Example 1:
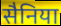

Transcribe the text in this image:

सैनिया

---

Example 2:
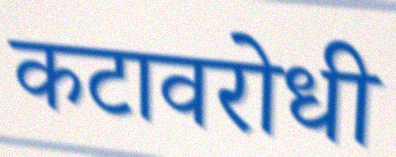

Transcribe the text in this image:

कटावरोधी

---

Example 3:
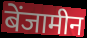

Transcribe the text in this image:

बेंजामीन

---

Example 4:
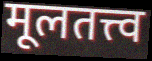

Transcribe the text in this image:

मूलतत्त्व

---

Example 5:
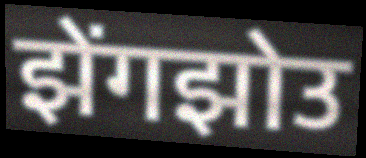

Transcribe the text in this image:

झेंगझोउ